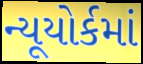
ન્યૂયોર્કમાં